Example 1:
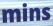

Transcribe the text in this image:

mins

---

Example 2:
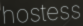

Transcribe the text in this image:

hostess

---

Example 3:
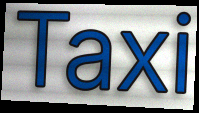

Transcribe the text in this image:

Taxi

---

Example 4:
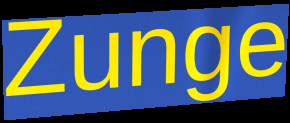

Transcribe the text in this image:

Zunge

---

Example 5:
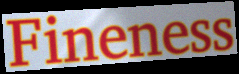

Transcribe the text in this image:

Fineness